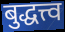
बुद्धत्त्व